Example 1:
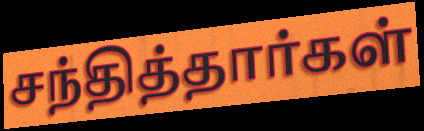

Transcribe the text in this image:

சந்தித்தார்கள்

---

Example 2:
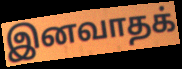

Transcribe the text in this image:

இனவாதக்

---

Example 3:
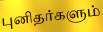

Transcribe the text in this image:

புனிதர்களும்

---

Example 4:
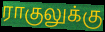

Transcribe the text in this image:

ராகுலுக்கு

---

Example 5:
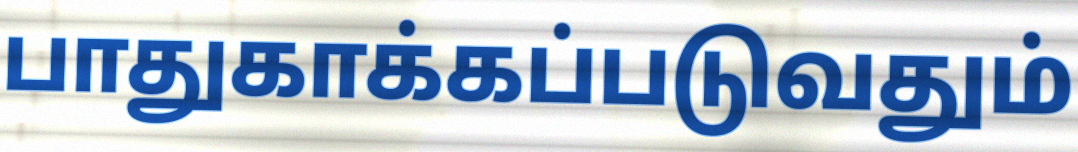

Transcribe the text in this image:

பாதுகாக்கப்படுவதும்